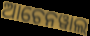
ଆଚେନୱାଲ